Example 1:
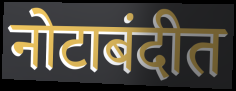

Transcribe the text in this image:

नोटाबंदीत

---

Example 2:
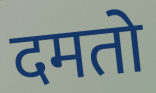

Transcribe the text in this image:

दमतो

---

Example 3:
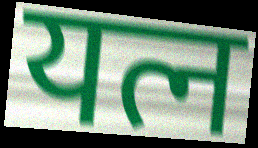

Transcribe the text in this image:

यत्न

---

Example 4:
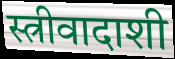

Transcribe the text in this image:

स्त्रीवादाशी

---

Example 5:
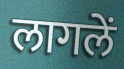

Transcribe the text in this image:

लागलें